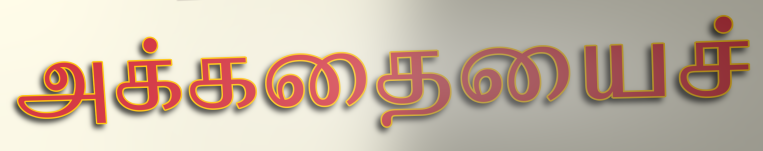
அக்கதையைச்